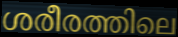
ശരീരത്തിലെ